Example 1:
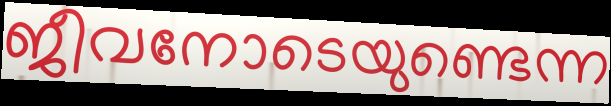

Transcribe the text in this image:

ജീവനോടെയുണ്ടെന്ന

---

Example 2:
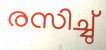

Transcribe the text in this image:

രസിച്ചു്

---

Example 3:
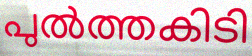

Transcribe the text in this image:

പുൽത്തകിടി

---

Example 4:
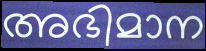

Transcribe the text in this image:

അഭിമാന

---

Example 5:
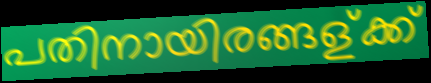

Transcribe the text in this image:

പതിനായിരങ്ങള്ക്ക്